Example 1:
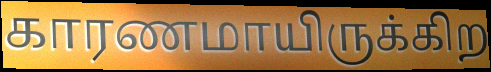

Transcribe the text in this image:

காரணமாயிருக்கிற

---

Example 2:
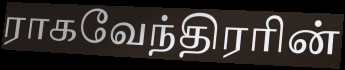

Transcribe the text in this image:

ராகவேந்திரரின்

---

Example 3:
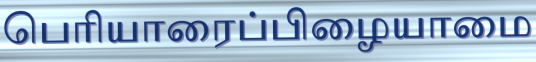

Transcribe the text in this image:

பெரியாரைப்பிழையாமை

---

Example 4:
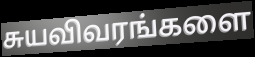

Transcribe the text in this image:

சுயவிவரங்களை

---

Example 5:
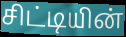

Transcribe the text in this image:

சிட்டியின்